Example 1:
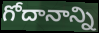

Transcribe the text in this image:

గోదానాన్ని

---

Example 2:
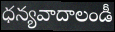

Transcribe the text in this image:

ధన్యవాదాలండీ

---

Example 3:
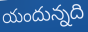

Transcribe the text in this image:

యందున్నది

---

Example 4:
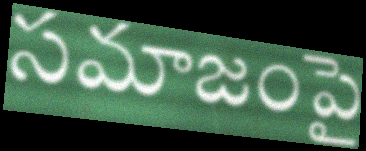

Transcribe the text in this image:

సమాజంపై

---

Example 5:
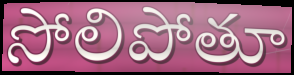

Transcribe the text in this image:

సోలిపోతూ